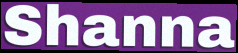
Shanna